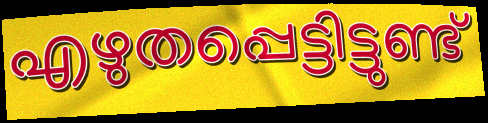
എഴുതപ്പെട്ടിട്ടുണ്ട്